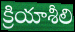
క్రియాశీలి